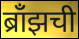
ब्राँझची